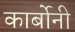
कार्बोनी